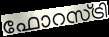
ഫോറസ്ട്രി